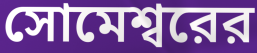
সোমেশ্বরের